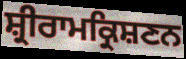
ਸ਼੍ਰੀਰਾਮਕ੍ਰਿਸ਼ਣਨ